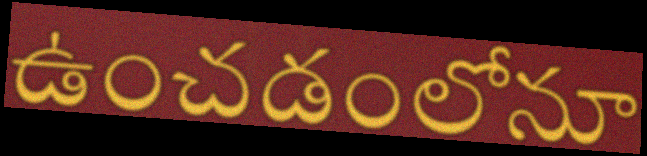
ఉంచడంలోనూ